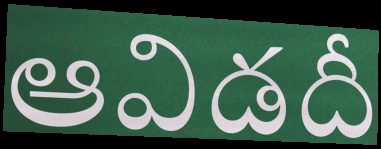
ఆవిడదీ